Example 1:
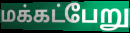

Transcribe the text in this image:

மக்கட்பேறு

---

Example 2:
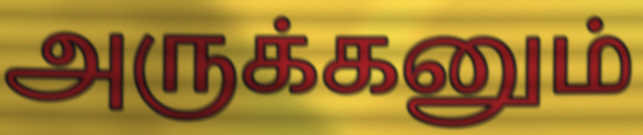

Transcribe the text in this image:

அருக்கனும்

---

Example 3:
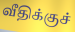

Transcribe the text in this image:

வீதிக்குச்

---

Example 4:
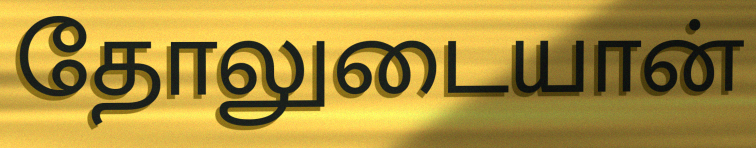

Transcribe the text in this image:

தோலுடையான்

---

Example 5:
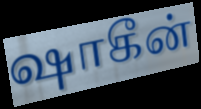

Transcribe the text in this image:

ஷாகீன்